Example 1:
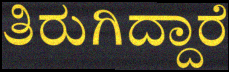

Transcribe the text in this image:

ತಿರುಗಿದ್ದಾರೆ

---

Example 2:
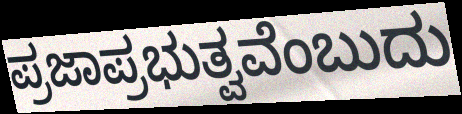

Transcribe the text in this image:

ಪ್ರಜಾಪ್ರಭುತ್ವವೆಂಬುದು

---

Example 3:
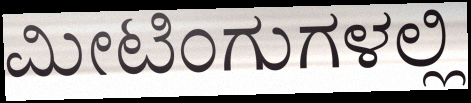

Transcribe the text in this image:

ಮೀಟಿಂಗುಗಳಲ್ಲಿ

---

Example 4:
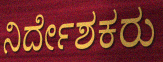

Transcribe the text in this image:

ನಿರ್ದೇಶಕರು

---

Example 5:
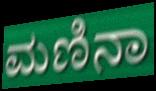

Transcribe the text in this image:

ಮಣಿನಾ